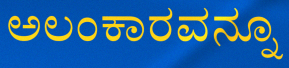
ಅಲಂಕಾರವನ್ನೂ